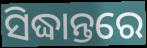
ସିଦ୍ଧାନ୍ତରେ